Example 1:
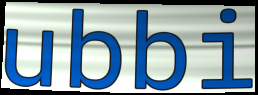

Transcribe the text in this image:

ubbi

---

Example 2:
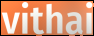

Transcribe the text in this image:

vithai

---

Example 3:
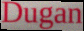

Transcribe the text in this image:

Dugan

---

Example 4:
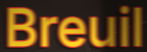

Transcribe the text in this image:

Breuil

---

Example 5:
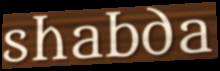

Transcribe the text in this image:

shabda